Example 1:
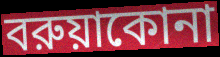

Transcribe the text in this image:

বরুয়াকোনা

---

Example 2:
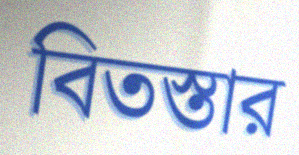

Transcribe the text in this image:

বিতস্তার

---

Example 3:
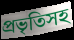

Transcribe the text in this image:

প্রভৃতিসহ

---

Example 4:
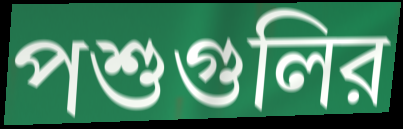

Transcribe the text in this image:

পশুগুলির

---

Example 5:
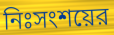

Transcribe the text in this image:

নিঃসংশয়ের